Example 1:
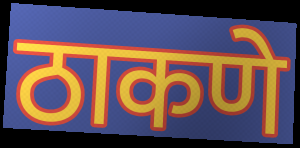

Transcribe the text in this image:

ठाकणे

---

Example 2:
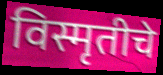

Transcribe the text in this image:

विस्मृतीचे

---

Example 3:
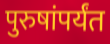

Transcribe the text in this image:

पुरुषांपर्यंत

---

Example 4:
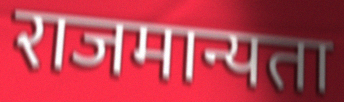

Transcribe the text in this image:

राजमान्यता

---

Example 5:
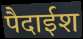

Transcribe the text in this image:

पैदाईश